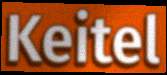
Keitel